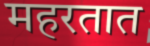
महरतात